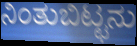
ನಿಂತುಬಿಟ್ಟನು